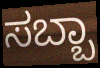
ಸಬ್ಬಾ